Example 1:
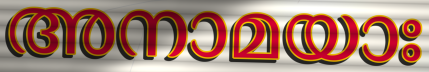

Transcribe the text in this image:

അനാമയാഃ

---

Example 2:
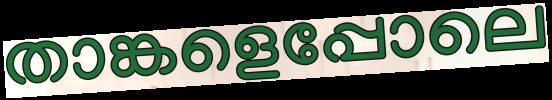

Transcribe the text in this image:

താങ്കളെപ്പോലെ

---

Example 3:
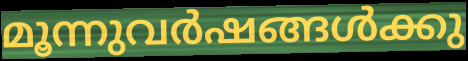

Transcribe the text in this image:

മൂന്നുവർഷങ്ങൾക്കു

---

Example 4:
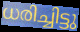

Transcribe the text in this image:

ധരിച്ചിട്ടു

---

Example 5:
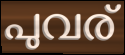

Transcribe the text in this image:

പുവര്